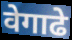
वेगाढे